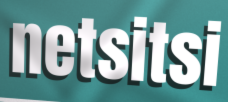
netsitsi